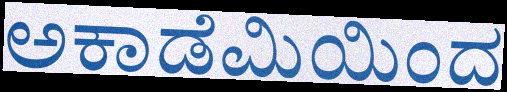
ಅಕಾಡೆಮಿಯಿಂದ